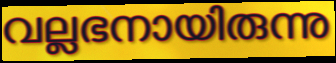
വല്ലഭനായിരുന്നു